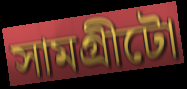
সামগ্ৰীটো